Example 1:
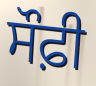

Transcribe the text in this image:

ਸੌਫ਼ੀ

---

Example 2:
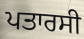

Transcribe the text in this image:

ਪਤਾਰਸੀ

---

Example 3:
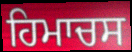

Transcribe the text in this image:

ਹਿਮਾਚਸ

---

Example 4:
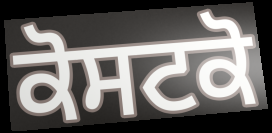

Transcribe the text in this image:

ਕੋਸਟਕੋ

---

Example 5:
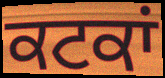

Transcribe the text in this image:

ਕਟਕਾਂ